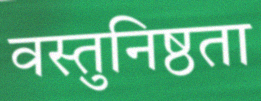
वस्तुनिष्ठता